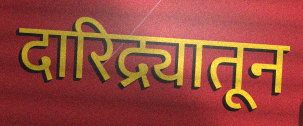
दारिद्र्यातून